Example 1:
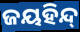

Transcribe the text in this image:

ଜୟହିନ୍ଦ୍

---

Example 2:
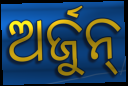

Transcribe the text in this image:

ଅର୍ଜୁନ୍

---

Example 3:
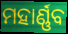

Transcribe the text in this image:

ମହାର୍ଣ୍ଣବ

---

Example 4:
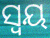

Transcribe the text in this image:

ସ୍ବୟ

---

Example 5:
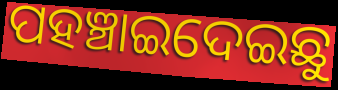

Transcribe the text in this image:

ପହଞ୍ଚାଇଦେଇଛୁ